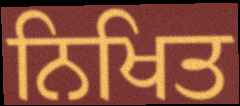
ਨਿਖਿਤ